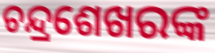
ଚନ୍ଦ୍ରଶେଖରଙ୍କ